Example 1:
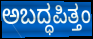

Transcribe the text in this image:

ಅಬದ್ಧಪಿತ್ತಂ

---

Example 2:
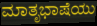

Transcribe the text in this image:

ಮಾತೃಭಾಷೆಯು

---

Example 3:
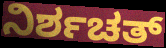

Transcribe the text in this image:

ನಿರ್ಶಚತ್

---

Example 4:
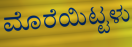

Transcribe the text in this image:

ಮೊರೆಯಿಟ್ಟಳು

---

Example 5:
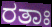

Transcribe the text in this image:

ರತಾಃ